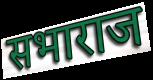
सभाराज